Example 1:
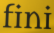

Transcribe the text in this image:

fini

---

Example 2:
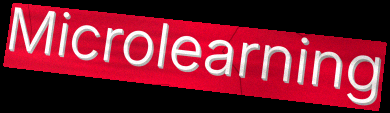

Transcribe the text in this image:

Microlearning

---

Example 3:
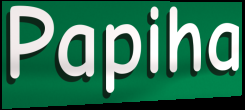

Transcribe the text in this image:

Papiha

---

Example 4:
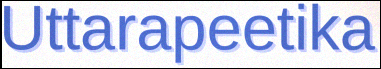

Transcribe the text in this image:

Uttarapeetika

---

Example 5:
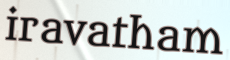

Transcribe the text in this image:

iravatham